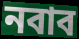
নবাব